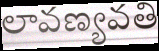
లావణ్యవతి